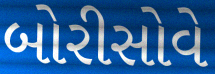
બોરીસોવે